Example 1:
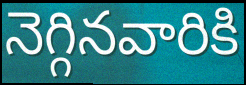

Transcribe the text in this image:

నెగ్గినవారికి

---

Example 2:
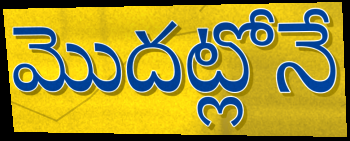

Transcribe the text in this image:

మొదట్లోనే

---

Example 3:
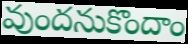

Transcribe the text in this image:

వుందనుకొందాం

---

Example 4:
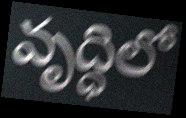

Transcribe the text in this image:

వృద్ధిలో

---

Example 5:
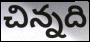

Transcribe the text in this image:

చిన్నది